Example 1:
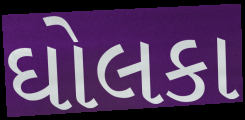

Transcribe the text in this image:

ઘોલકા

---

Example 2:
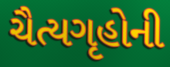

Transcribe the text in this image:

ચૈત્યગૃહોની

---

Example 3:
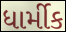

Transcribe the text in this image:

ધાર્મીક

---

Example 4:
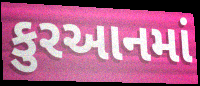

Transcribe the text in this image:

કુરઆનમાં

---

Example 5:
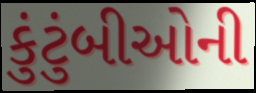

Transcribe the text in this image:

કુંટુંબીઓની